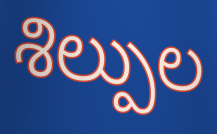
శిల్పుల